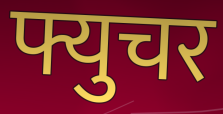
फ्युचर